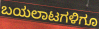
ಬಯಲಾಟಗಳಿಗೂ